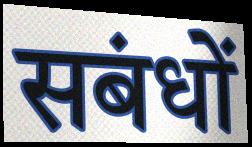
सबंधों